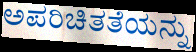
ಅಪರಿಚಿತತೆಯನ್ನು